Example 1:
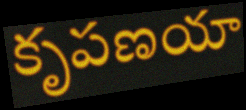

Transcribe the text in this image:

కృపణయా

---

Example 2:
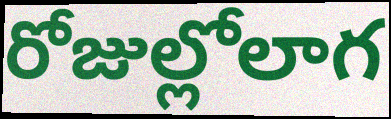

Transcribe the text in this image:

రోజుల్లోలాగ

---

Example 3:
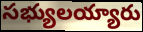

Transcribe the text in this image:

సభ్యులయ్యారు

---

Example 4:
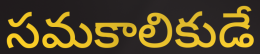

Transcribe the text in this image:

సమకాలికుడే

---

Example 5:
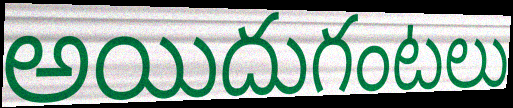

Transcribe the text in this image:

అయిదుగంటలు